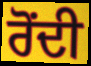
ਰੋਂਦੀ